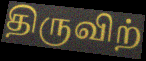
திருவிற்